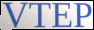
VTEP